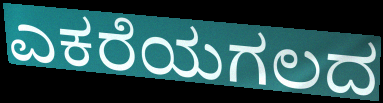
ಎಕರೆಯಗಲದ